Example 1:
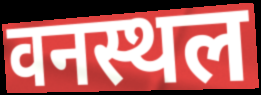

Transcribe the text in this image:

वनस्थल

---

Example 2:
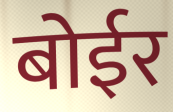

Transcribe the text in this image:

बोईर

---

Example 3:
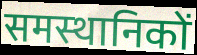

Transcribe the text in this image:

समस्थानिकों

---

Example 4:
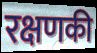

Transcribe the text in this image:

रक्षणकी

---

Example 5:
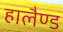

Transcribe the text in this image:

हालैण्ड